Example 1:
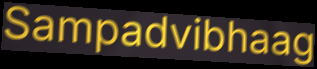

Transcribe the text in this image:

Sampadvibhaag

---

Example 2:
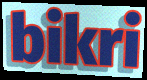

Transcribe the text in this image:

bikri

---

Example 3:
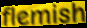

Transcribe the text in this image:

flemish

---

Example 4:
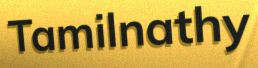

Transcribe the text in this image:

Tamilnathy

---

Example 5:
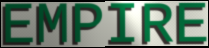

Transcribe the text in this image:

EMPIRE